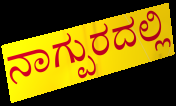
ನಾಗ್ಪುರದಲ್ಲಿ